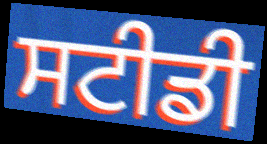
ਸਟੀਡੀ